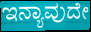
ಇನ್ಯಾವುದೇ